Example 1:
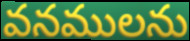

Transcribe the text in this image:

వనములను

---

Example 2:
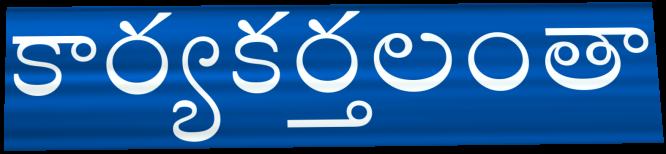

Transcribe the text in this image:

కార్యకర్తలంతా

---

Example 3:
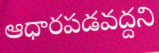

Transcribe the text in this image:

ఆధారపడవద్దని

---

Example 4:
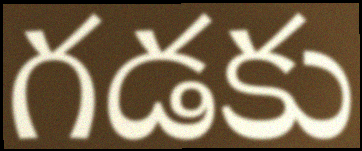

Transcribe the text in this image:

గడకు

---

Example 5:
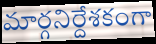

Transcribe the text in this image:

మార్గనిర్దేశకంగా